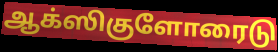
ஆக்ஸிகுளோரைடு